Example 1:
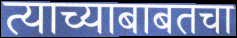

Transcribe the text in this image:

त्याच्याबाबतचा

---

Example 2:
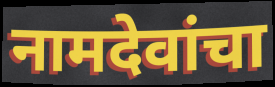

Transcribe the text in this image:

नामदेवांचा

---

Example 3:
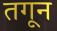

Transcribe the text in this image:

तगून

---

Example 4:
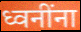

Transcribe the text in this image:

ध्वनींना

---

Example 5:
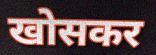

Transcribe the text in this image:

खोसकर